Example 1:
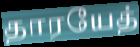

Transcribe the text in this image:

தாரயேத்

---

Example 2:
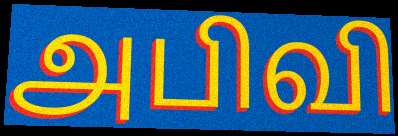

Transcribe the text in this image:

அபிவி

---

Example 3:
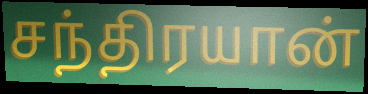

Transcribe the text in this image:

சந்திரயான்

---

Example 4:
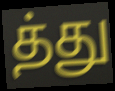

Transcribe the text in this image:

த்து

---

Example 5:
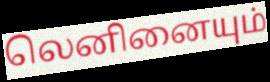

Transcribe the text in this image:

லெனினையும்